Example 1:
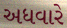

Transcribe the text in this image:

અધવારે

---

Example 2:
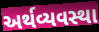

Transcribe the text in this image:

અર્થવ્યવસ્થા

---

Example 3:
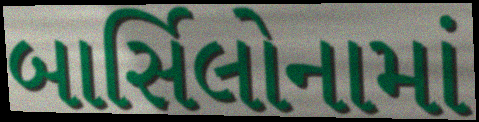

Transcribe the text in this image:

બાર્સિલોનામાં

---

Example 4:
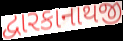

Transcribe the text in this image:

દ્વારકાનાથજી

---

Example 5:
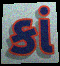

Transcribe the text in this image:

કાં